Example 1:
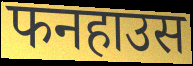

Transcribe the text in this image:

फनहाउस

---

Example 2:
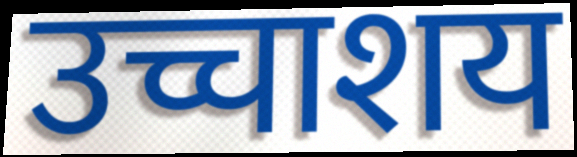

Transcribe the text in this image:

उच्चाशय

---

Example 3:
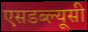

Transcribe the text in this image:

एसडब्ल्यूसी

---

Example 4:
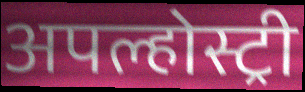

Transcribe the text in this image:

अपल्होस्ट्री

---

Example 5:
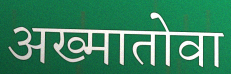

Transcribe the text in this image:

अख्मातोवा